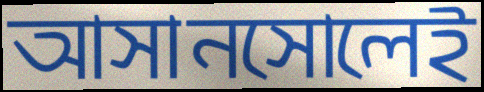
আসানসোলেই